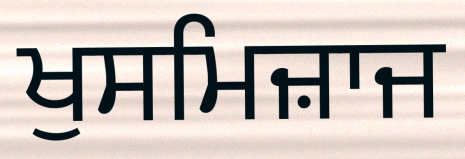
ਖੁਸਮਿਜ਼ਾਜ